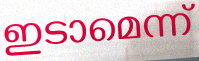
ഇടാമെന്ന്